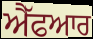
ਐੱਫਆਰ